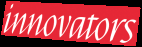
innovators